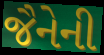
જૈનેની